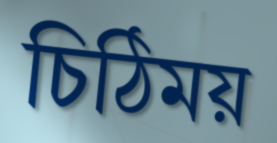
চিঠিময়